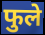
फुले